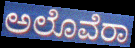
ಅಲೊವೆರಾ